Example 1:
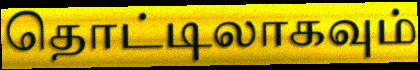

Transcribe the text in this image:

தொட்டிலாகவும்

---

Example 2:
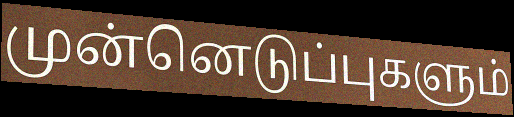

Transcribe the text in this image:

முன்னெடுப்புகளும்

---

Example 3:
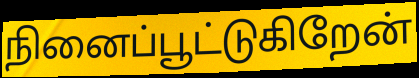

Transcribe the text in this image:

நினைப்பூட்டுகிறேன்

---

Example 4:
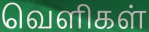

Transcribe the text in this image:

வெளிகள்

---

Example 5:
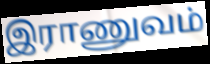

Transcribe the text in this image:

இராணுவம்